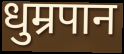
धुम्रपान